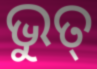
ଭୁତ୍